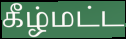
கீழ்மட்ட